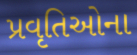
પ્રવૃતિઓના